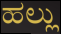
ಹಲ್ಲು